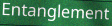
Entanglement